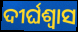
ଦୀର୍ଘଶ୍ୱାସ